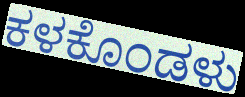
ಕಳಕೊಂಡಳು